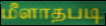
மீளாதபடி